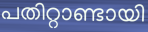
പതിറ്റാണ്ടായി